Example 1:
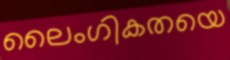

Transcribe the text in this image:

ലൈംഗികതയെ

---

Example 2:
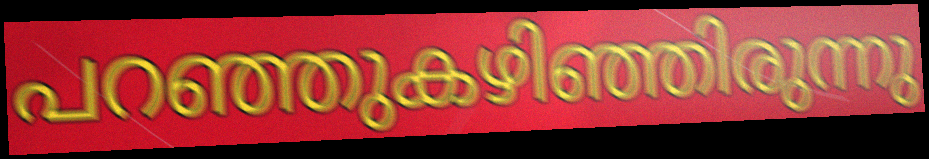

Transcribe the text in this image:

പറഞ്ഞുകഴിഞ്ഞിരുന്നു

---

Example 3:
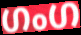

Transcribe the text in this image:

ഗംഗ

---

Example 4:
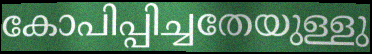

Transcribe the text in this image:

കോപിപ്പിച്ചതേയുള്ളു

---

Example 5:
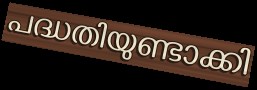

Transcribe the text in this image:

പദ്ധതിയുണ്ടാക്കി